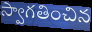
స్వాగతించిన